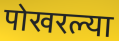
पोखरल्या